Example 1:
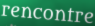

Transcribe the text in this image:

rencontre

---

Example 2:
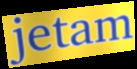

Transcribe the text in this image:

jetam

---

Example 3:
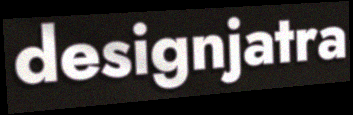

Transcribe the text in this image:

designjatra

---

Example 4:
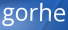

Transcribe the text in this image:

gorhe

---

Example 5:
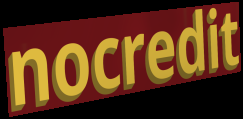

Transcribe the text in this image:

nocredit